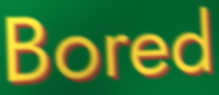
Bored